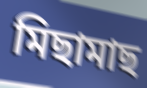
মিছামাছ